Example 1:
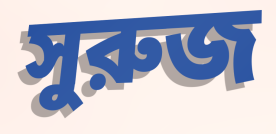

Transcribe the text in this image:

সুরুজ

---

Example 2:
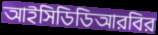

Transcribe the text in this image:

আইসিডিডিআরবির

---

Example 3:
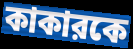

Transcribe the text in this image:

কাকারকে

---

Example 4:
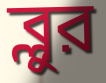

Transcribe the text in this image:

ব্লুর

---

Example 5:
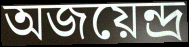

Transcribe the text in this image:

অজয়েন্দ্র